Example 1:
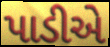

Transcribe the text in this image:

પાડીએ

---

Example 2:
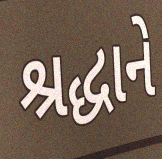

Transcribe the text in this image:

શ્રદ્ધાને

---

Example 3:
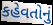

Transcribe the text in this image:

કહેવતોનું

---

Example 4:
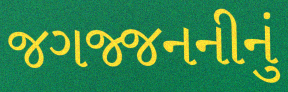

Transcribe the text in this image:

જગજ્જનનીનું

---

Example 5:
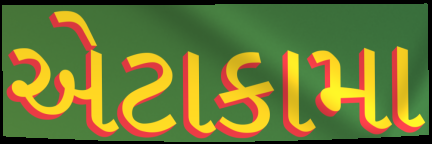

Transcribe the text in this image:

એટાકામા